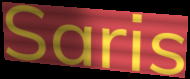
Saris